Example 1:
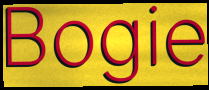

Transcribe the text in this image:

Bogie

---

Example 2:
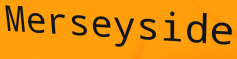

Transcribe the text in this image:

Merseyside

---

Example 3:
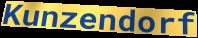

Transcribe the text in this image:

Kunzendorf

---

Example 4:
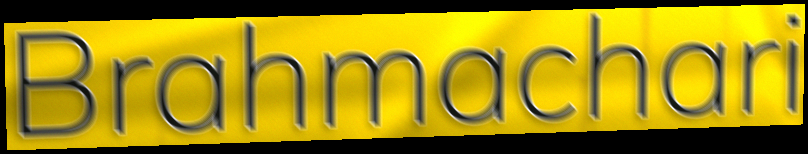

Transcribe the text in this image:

Brahmachari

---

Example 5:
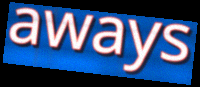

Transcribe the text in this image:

aways